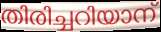
തിരിച്ചറിയാന്